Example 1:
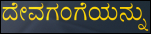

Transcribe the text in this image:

ದೇವಗಂಗೆಯನ್ನು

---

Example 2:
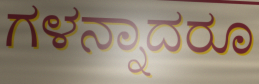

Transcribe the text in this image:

ಗಳನ್ನಾದರೂ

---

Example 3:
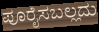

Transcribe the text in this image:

ಪೂರೈಸಬಲ್ಲದು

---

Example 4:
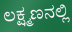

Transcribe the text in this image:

ಲಕ್ಷ್ಮಣನಲ್ಲಿ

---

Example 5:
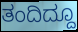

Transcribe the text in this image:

ತಂದಿದ್ದೂ